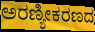
ಅರಣ್ಯೀಕರಣದ